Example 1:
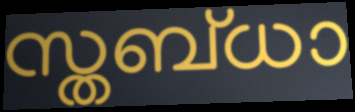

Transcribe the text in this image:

സ്തബ്ധാ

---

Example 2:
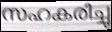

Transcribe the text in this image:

സഹകരിച്ചു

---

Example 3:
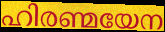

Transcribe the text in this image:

ഹിരണ്മയേന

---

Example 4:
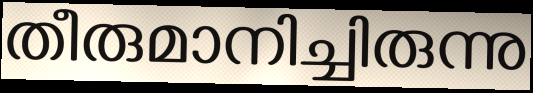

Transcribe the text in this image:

തീരുമാനിച്ചിരുന്നു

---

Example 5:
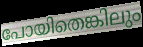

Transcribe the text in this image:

പോയിതെങ്കിലും